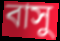
বাসু